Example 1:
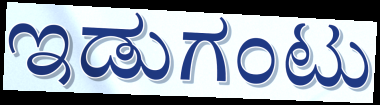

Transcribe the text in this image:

ಇಡುಗಂಟು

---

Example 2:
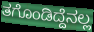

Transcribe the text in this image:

ತಗೊಂಡಿದ್ದೆನಲ್ಲ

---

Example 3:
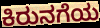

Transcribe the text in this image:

ಕಿರುನಗೆಯ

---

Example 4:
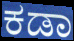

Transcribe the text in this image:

ಕಡಾ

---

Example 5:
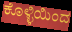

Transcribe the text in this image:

ಕೊಳ್ಳಿಯಿಂದ